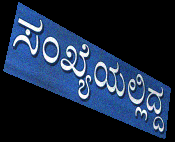
ಸಂಖ್ಯೆಯಲ್ಲಿದ್ದ